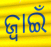
ଜ୍ଵାଇଁ